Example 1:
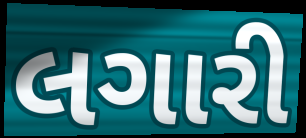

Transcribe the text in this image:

લગારી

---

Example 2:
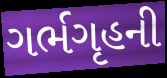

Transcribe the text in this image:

ગર્ભગૃહની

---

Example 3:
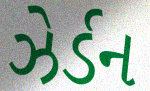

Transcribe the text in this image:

ઝેર્ડન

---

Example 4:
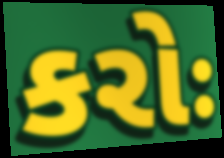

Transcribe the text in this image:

કરોઃ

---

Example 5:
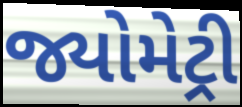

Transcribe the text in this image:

જ્યોમેટ્રી